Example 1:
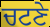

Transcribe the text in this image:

ਚਟਣੇ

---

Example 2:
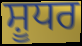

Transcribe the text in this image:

ਸ਼ੂਧਰ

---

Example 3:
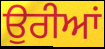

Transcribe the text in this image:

ਉਰੀਆਂ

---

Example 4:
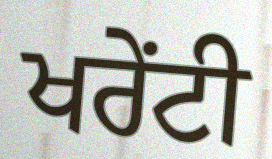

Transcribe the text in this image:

ਖਰੇਂਟੀ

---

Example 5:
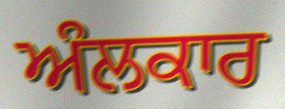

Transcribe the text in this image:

ਅੰਲਕਾਰ